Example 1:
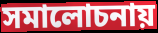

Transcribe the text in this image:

সমালোচনায়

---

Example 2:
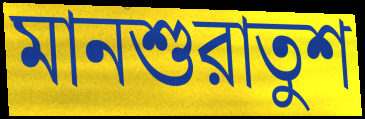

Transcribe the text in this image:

মানশুরাতুশ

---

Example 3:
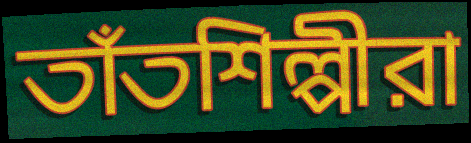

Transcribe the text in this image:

তাঁতশিল্পীরা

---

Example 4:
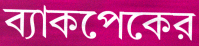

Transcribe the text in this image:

ব্যাকপেকের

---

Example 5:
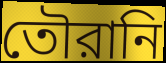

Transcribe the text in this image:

তৌরানি